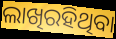
ଲାଖିରହିଥିବା